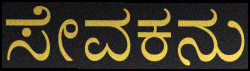
ಸೇವಕನು